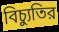
বিচ্যুতির